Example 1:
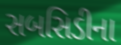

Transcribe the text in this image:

સબસિડીના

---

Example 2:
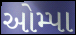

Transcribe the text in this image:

ઓમ્પા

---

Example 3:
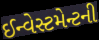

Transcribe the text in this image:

ઈન્વેસ્ટમેન્ટની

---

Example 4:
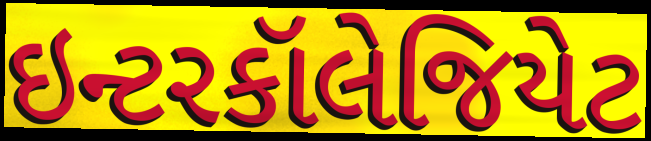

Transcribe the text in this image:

ઇન્ટરકૉલેજિયેટ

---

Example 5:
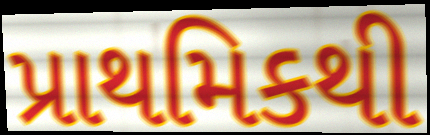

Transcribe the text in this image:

પ્રાથમિકથી